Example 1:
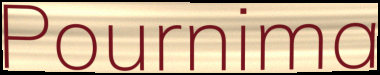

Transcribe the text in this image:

Pournima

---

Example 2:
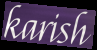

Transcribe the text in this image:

karish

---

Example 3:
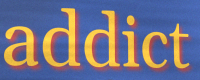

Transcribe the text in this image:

addict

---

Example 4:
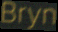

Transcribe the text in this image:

Bryn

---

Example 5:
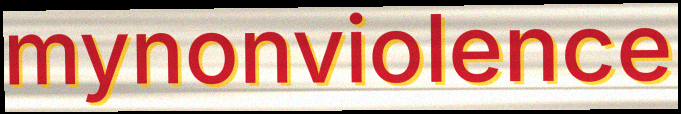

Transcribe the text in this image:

mynonviolence